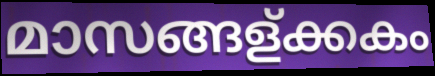
മാസങ്ങള്ക്കകം